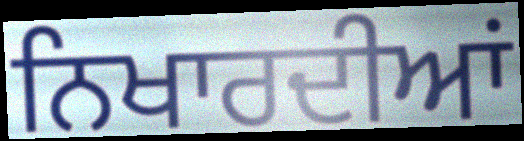
ਨਿਖਾਰਦੀਆਂ